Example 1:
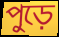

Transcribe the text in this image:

পুড়ে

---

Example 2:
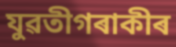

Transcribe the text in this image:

যুৱতীগৰাকীৰ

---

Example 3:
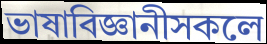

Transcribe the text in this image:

ভাষাবিজ্ঞানীসকলে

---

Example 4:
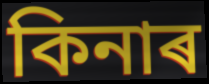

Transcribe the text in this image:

কিনাৰ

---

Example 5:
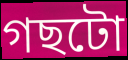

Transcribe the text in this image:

গছটো